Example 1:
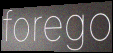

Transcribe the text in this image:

forego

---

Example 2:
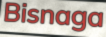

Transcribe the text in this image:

Bisnaga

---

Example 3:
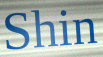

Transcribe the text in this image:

Shin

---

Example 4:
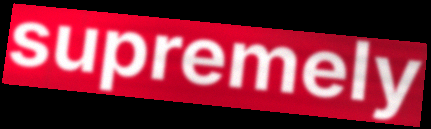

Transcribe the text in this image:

supremely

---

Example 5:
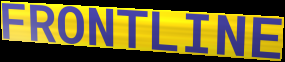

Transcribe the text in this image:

FRONTLINE